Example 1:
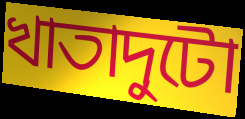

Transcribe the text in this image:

খাতাদুটো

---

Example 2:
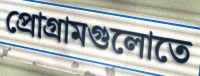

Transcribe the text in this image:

প্রোগ্রামগুলোতে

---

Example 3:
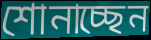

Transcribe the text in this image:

শোনাচ্ছেন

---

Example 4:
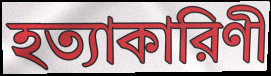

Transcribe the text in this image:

হত্যাকারিণী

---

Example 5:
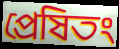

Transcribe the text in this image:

প্রেষিতং